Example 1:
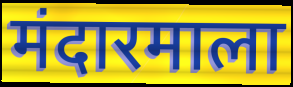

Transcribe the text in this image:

मंदारमाला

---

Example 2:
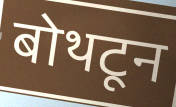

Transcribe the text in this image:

बोथटून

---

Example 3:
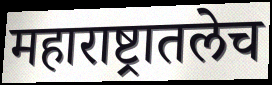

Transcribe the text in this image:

महाराष्ट्रातलेच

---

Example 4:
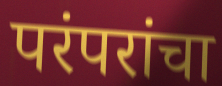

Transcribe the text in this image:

परंपरांचा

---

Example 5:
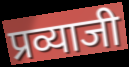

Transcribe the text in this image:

प्रव्याजी